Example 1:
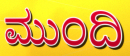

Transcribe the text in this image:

ಮುಂದಿ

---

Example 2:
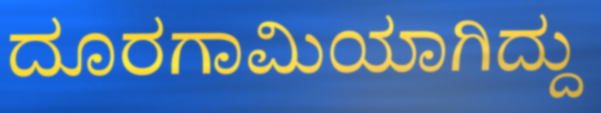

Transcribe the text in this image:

ದೂರಗಾಮಿಯಾಗಿದ್ದು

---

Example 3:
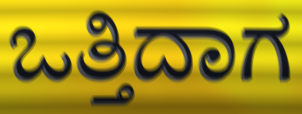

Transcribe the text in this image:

ಒತ್ತಿದಾಗ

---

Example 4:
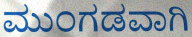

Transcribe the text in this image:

ಮುಂಗಡವಾಗಿ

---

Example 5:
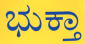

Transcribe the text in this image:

ಭುಕ್ತಾ